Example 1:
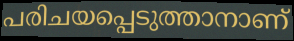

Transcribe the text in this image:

പരിചയപ്പെടുത്താനാണ്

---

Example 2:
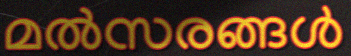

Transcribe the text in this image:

മൽസരങ്ങൾ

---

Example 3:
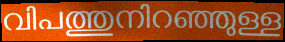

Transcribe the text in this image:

വിപത്തുനിറഞ്ഞുള്ള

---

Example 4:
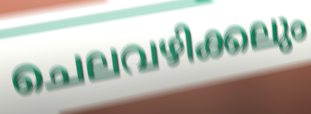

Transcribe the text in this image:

ചെലവഴിക്കലും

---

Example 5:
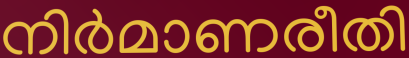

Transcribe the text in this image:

നിർമാണരീതി